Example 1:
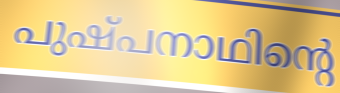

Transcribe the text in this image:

പുഷ്പനാഥിന്റെ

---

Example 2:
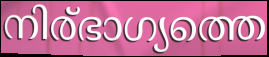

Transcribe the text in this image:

നിര്ഭാഗ്യത്തെ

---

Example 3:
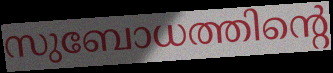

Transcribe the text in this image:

സുബോധത്തിന്റെ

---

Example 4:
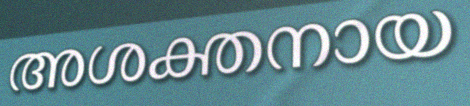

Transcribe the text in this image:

അശക്തനായ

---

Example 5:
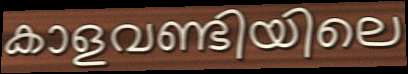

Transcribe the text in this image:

കാളവണ്ടിയിലെ